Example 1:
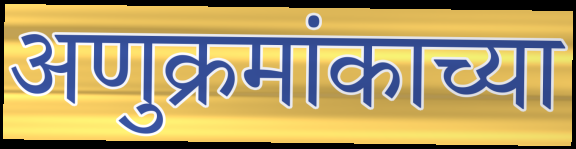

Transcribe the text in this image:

अणुक्रमांकाच्या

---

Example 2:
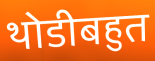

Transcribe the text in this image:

थोडीबहुत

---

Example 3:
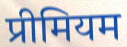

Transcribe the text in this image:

प्रीमियम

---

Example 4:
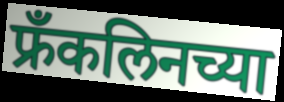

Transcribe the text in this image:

फ्रँकलिनच्या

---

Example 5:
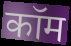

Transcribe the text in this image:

कॉम